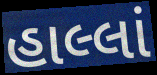
હાલ્લાં